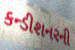
કન્ડીશનરની